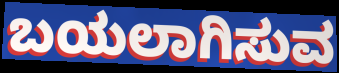
ಬಯಲಾಗಿಸುವ